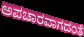
ಅಪಚಾರವಾಗದಂತೆ